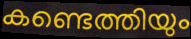
കണ്ടെത്തിയും